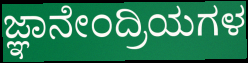
ಜ್ಞಾನೇಂದ್ರಿಯಗಳ